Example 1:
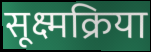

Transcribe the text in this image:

सूक्ष्मक्रिया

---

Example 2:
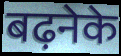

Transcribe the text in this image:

बढ़नेके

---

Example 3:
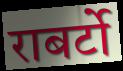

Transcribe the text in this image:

राबर्टो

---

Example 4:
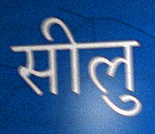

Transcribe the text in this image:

सीलु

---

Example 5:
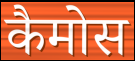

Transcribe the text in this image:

कैमोस